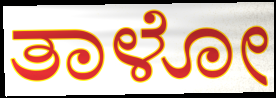
ತಾಳೋ